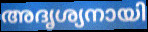
അദൃശ്യനായി